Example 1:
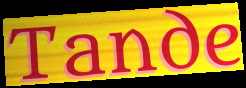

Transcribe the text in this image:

Tande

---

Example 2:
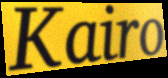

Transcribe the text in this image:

Kairo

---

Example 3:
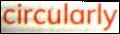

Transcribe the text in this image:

circularly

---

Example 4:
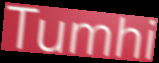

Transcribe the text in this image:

Tumhi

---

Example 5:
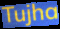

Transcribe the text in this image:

Tujha